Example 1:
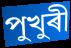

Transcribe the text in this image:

পুখুৰী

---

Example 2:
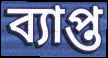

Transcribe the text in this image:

ব্যাপ্ত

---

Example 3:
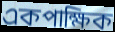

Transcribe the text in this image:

একপাক্ষিক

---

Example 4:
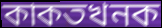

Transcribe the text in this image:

কাকতখনক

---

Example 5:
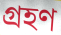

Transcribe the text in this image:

গ্ৰহণ